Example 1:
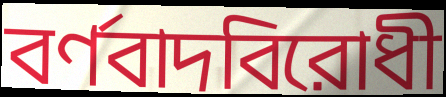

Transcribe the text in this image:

বর্ণবাদবিরোধী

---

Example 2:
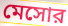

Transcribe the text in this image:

মেসোর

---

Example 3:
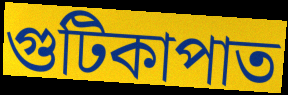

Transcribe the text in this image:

গুটিকাপাত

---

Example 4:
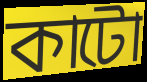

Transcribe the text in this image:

কাটো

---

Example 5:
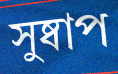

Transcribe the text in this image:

সুষ্বাপ